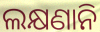
ଲକ୍ଷଣାନି